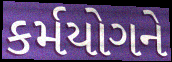
કર્મયોગને